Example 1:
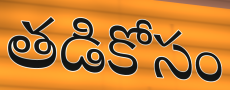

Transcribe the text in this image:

తడికోసం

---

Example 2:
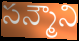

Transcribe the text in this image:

సన్మౌని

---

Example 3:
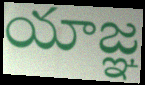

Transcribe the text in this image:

యాజ్ఞ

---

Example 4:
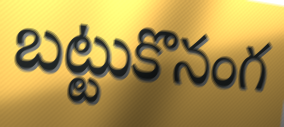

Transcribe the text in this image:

బట్టుకొనంగ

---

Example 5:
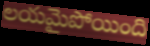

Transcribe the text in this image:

లయమైపోయింది